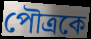
পৌত্রকে